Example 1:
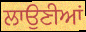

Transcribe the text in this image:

ਲਾਉਣੀਆਂ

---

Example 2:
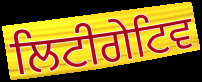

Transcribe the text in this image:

ਲਿਟੀਗੇਟਿਵ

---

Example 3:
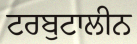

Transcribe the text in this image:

ਟਰਬੁਟਾਲੀਨ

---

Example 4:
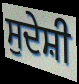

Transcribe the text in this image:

ਸੁਦੇਸ਼ੀ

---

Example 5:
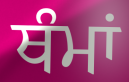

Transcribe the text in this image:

ਥੰਮਾਂ